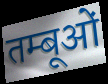
तम्बूओं